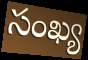
సంఖ్య